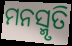
ମନସ୍ମୃତି